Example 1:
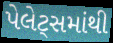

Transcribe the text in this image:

પેલેટ્સમાંથી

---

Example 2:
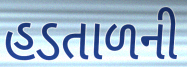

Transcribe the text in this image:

હડતાળની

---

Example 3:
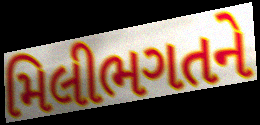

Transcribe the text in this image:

મિલીભગતને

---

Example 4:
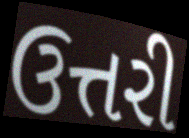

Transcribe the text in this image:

ઉત્તરી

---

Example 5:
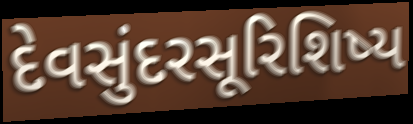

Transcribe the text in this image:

દેવસુંદરસૂરિશિષ્ય